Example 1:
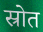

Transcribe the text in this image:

स्रोत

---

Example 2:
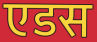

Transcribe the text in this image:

एडस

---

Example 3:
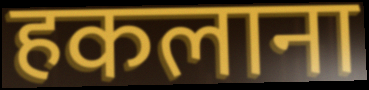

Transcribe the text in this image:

हकलाना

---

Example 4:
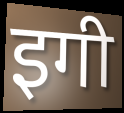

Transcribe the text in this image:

इगी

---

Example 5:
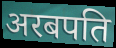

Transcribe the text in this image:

अरबपति